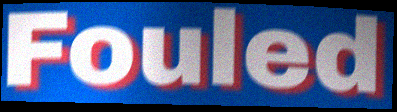
Fouled